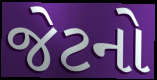
જેટનો